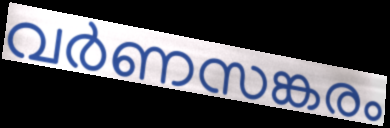
വർണസങ്കരം